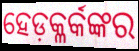
ହେଡ଼କ୍ଳର୍କଙ୍କର